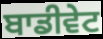
ਬਾਡੀਵੇਟ